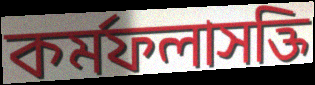
কর্মফলাসক্তি